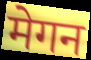
मेगन